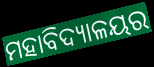
ମହାବିଦ୍ୟାଳୟର